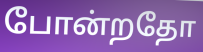
போன்றதோ